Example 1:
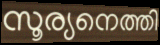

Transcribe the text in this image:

സൂര്യനെത്തി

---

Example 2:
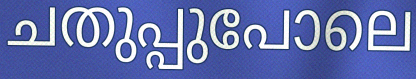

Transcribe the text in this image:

ചതുപ്പുപോലെ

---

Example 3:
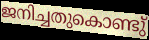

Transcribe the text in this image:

ജനിച്ചതുകൊണ്ടു്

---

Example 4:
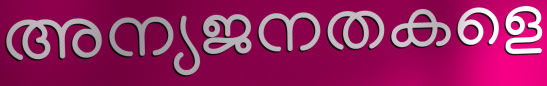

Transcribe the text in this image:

അന്യജനതകളെ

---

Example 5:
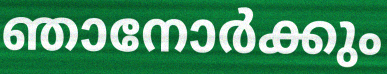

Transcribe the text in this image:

ഞാനോർക്കും